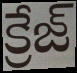
క్రేజ్